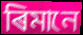
ৰিমানে